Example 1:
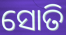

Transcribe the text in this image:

ସୋତି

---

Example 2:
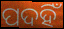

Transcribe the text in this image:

ପଦହିଁ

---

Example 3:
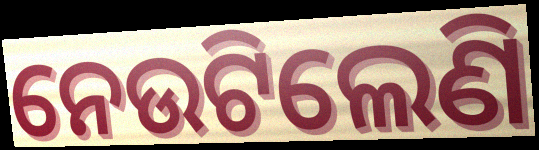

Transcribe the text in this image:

ନେଉଟିଲେଣି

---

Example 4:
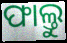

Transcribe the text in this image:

ଫାଲ୍ତୁ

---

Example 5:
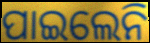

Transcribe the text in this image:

ପାଇଲେନି